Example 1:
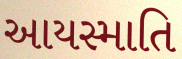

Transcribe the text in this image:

આયસ્માતિ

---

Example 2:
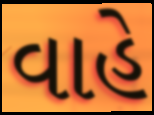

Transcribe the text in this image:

વાહે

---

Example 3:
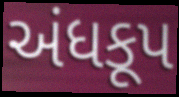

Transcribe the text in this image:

અંધકૂપ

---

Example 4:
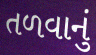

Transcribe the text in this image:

તળવાનું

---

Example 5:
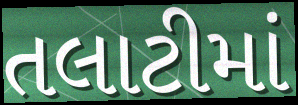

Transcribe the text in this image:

તલાટીમાં